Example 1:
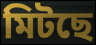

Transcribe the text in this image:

মিটছে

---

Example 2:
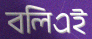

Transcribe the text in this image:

বলিএই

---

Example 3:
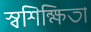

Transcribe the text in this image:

স্বশিক্ষিতা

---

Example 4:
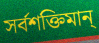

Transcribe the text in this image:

সর্বশক্তিমান্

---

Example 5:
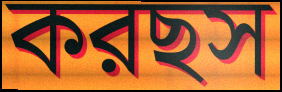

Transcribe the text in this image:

করছস